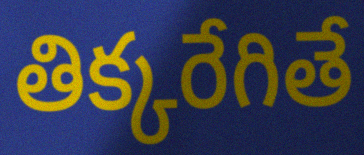
తిక్కరేగితే